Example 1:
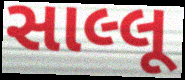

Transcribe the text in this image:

સાલ્લૂ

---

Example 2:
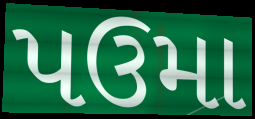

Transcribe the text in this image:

પઉમા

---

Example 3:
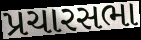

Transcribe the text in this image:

પ્રચારસભા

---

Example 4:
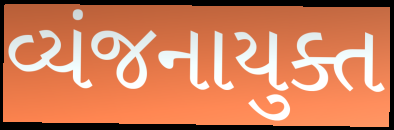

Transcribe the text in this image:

વ્યંજનાયુક્ત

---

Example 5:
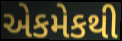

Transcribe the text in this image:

એકમેકથી